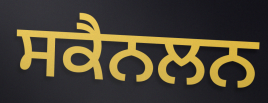
ਸਕੈਨਲਨ